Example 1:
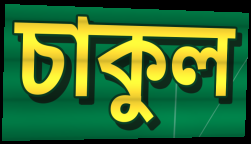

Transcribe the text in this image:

চাকুল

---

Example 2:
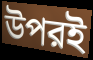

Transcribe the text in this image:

উপরই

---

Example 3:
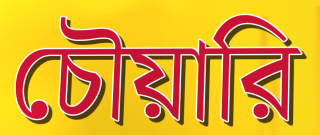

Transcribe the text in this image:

চৌয়ারি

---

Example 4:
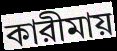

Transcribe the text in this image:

কারীমায়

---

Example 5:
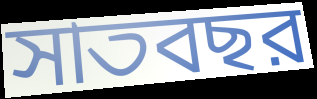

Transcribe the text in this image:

সাতবছর